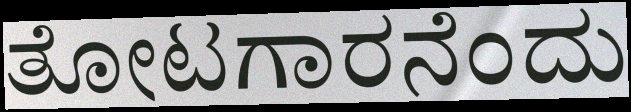
ತೋಟಗಾರನೆಂದು